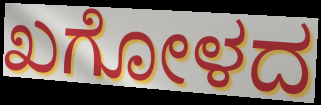
ಖಗೋಳದ